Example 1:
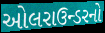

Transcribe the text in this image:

ઓલરાઉન્ડરનો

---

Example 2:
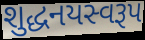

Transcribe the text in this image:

શુદ્ધનયસ્વરૂપ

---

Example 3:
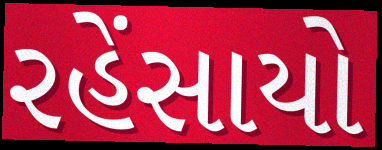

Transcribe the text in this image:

રહેંસાયો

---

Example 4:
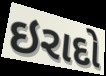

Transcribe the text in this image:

ઇરાદો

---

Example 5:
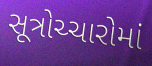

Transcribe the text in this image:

સૂત્રોચ્ચારોમાં